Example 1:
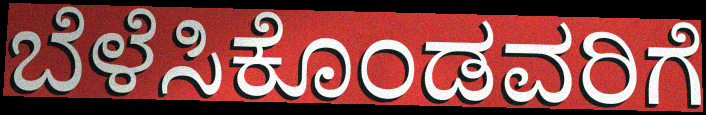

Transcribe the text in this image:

ಬೆಳೆಸಿಕೊಂಡವರಿಗೆ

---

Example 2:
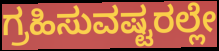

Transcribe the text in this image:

ಗ್ರಹಿಸುವಷ್ಟರಲ್ಲೇ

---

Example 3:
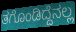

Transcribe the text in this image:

ತಗೊಂಡಿದ್ದೆನಲ್ಲ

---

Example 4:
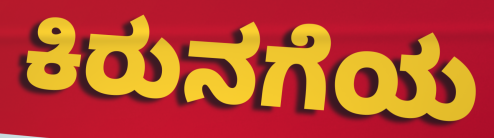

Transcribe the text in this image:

ಕಿರುನಗೆಯ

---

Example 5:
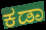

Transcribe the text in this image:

ಕಡಾ